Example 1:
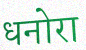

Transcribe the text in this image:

धनोरा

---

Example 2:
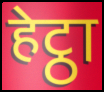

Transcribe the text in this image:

हेट्ठा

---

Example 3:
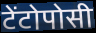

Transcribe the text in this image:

टेंटोपोसी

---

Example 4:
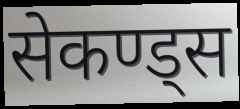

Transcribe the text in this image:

सेकण्ड्स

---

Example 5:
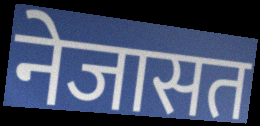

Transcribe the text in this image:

नेजासत